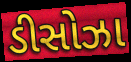
ડીસોઝા